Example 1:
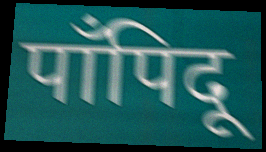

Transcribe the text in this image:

पाँपिदू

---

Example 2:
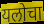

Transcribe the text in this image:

यलोचा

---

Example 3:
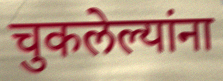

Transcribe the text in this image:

चुकलेल्यांना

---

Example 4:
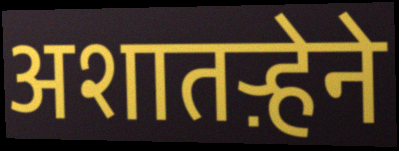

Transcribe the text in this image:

अशातऱ्‍हेने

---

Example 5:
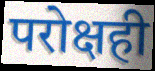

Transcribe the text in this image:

परोक्षही